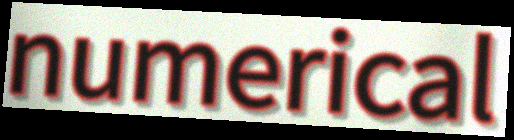
numerical